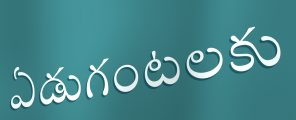
ఏడుగంటలకు